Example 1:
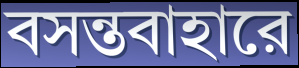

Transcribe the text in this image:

বসন্তবাহারে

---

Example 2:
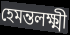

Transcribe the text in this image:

হেমন্তলক্ষ্মী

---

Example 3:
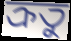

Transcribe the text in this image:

ক্রতু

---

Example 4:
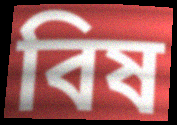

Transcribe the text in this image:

বিষ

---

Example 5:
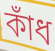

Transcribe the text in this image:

কাঁধ